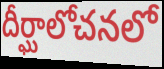
దీర్ఘాలోచనలో